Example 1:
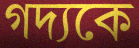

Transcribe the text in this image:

গদ্যকে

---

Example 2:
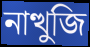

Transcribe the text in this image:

নাত্থুজি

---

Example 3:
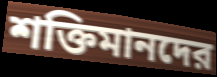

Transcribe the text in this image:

শক্তিমানদের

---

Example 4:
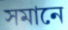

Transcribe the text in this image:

সমানে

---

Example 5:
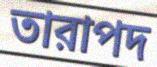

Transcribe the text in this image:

তারাপদ